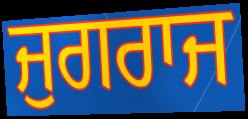
ਜੁਗਰਾਜ